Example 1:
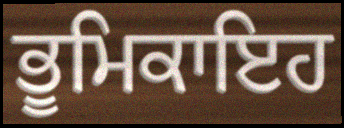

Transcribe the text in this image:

ਭੂਮਿਕਾਇਹ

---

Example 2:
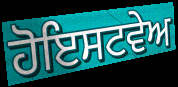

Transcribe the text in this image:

ਹੋਇਸਟਵੇਅ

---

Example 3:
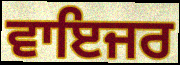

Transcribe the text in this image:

ਵਾਇਜਰ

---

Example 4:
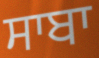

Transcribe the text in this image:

ਸਾਬਾ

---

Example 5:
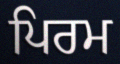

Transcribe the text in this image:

ਪਿਰਮ